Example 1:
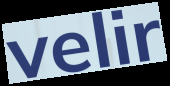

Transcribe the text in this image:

velir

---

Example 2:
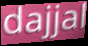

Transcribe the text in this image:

dajjal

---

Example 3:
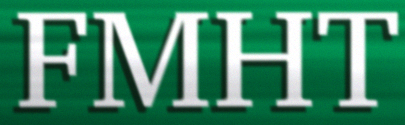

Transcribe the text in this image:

FMHT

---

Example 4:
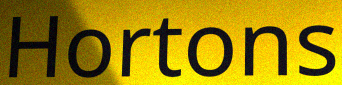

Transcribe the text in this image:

Hortons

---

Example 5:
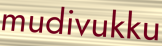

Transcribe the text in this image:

mudivukku